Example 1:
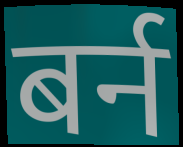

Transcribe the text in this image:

बर्न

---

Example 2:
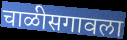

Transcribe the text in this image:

चाळीसगावला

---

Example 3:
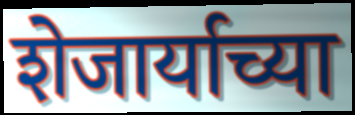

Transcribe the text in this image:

शेजार्याच्या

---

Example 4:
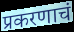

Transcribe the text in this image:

प्रकरणाचं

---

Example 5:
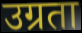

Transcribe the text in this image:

उग्रता